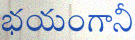
భయంగానీ